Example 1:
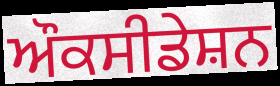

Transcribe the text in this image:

ਔਕਸੀਡੇਸ਼ਨ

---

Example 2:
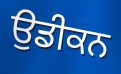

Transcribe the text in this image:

ਉਡੀਕਨ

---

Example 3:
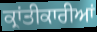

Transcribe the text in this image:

ਕ੍ਰਾਂਤੀਕਾਰੀਆਂ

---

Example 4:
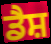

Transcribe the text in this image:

ਡੈਸ਼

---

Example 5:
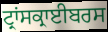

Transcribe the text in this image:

ਟ੍ਰਾਂਸਕ੍ਰਾਈਬਰਸ